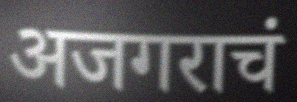
अजगराचं